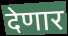
देणार